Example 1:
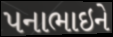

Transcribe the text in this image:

પનાભાઇને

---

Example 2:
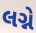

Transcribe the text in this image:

લગ્ને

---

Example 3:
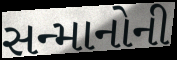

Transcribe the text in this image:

સન્માનોની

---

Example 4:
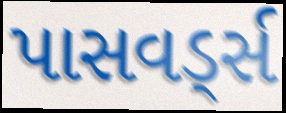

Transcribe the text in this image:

પાસવર્ડ્સ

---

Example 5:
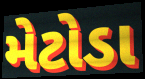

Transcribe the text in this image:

મેટોડા